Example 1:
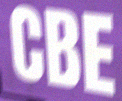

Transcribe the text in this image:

CBE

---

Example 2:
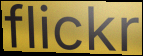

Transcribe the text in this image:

flickr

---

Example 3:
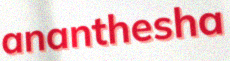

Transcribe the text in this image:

ananthesha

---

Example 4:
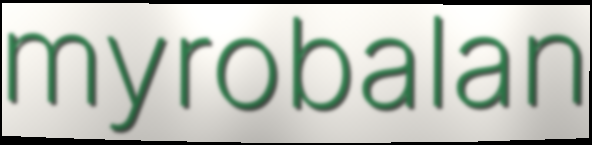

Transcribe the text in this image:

myrobalan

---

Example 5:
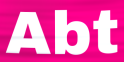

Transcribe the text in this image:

Abt